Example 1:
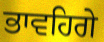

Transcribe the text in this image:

ਭਾਵਹਿਗੇ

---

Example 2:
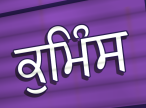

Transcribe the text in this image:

ਕੁਮਿੰਸ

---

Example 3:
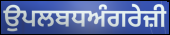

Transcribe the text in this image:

ਉਪਲਬਧਅੰਗਰੇਜ਼ੀ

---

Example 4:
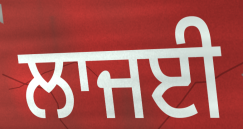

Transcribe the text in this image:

ਲਾਜਈ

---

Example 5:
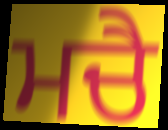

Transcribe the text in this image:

ਮਚੈ